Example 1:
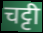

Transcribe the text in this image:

चट्टी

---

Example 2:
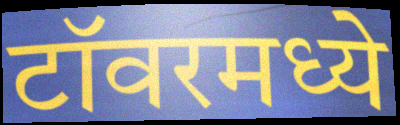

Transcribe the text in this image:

टॉवरमध्ये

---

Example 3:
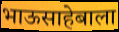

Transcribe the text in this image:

भाऊसाहेबाला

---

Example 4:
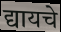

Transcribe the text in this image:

द्यायचे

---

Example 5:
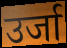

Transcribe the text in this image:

उर्जा